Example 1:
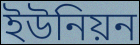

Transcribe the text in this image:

ইউনিয়ন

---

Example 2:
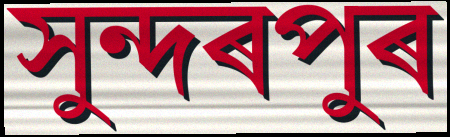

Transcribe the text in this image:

সুন্দৰপুৰ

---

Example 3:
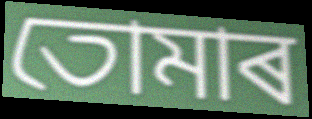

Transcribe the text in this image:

তোমাৰ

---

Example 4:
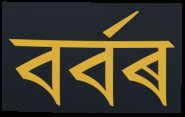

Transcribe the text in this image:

বৰ্বৰ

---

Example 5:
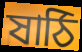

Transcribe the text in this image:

ষাঠি